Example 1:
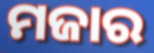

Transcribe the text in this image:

ମଜାର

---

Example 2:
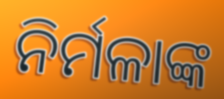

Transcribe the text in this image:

ନିର୍ମଳାଙ୍କ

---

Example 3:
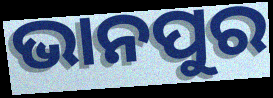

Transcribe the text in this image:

ଭାନପୁର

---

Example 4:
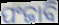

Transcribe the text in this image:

ପଂଜାବି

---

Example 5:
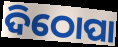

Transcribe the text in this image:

ଦିଠୋପା